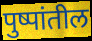
पुष्पांतील